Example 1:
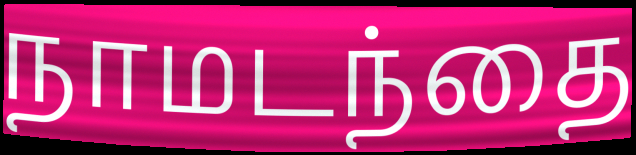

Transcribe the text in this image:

நாமடந்தை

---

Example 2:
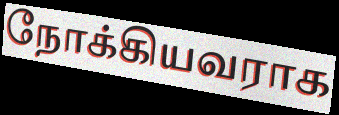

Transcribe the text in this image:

நோக்கியவராக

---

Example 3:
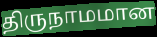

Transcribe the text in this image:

திருநாமமான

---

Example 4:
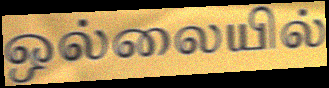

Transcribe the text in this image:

ஒல்லையில்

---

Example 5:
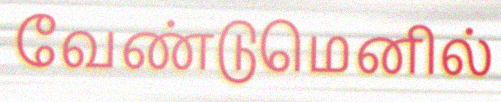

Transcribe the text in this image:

வேண்டுமெனில்